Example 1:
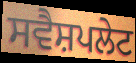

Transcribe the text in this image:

ਸਵੈਸ਼ਪਲੇਟ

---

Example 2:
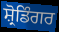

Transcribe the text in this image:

ਸ਼੍ਰੋਡਿੰਗਰ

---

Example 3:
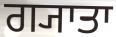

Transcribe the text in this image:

ਗ੍ਯਾਤਾ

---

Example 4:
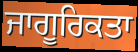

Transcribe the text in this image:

ਜਾਗੂਰਿਕਤਾ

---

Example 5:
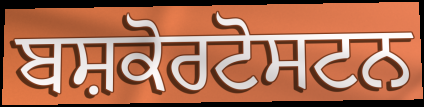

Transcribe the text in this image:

ਬਸ਼ਕੋਰਟੋਸਟਨ